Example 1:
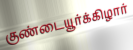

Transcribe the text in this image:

குண்டையூர்க்கிழார்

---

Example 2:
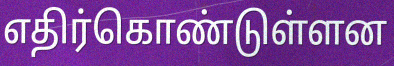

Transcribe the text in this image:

எதிர்கொண்டுள்ளன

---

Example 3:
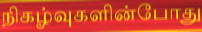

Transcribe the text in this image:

நிகழ்வுகளின்போது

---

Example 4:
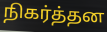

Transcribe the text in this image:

நிகர்த்தன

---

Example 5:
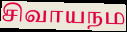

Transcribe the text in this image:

சிவாயநம